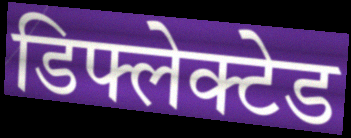
डिफ्लेक्टेड